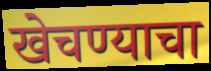
खेचण्याचा